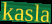
kasla